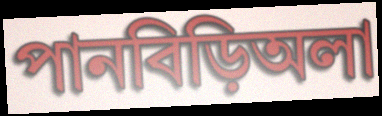
পানবিড়িঅলা